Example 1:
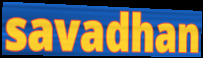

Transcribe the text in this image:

savadhan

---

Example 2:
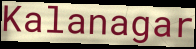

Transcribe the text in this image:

Kalanagar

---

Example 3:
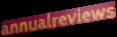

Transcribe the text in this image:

annualreviews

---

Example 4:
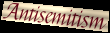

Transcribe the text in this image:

Antisemitism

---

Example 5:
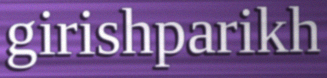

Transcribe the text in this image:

girishparikh